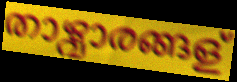
താഴ്വാരങ്ങള്